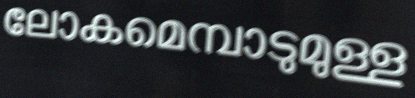
ലോകമെമ്പാടുമുള്ള